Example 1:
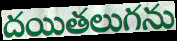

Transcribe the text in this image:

దయితలుగను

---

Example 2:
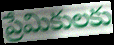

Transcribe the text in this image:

ప్రేమికులకు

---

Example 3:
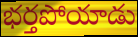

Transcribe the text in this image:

భర్తపోయాడు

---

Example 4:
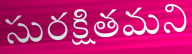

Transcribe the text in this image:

సురక్షితమని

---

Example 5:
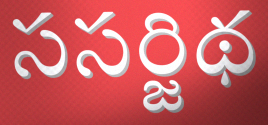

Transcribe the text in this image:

ససర్జిథ